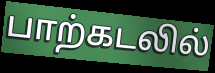
பாற்கடலில்